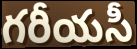
గరీయసీ